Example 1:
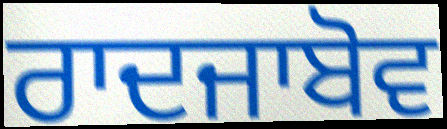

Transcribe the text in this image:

ਰਾਦਜਾਬੋਵ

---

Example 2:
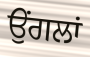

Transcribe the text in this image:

ਉਂਗਲਾਂ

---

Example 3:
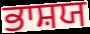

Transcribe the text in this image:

ਭਾਸ਼ਯ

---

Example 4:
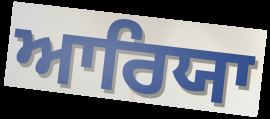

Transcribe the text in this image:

ਆਰਿਯਾ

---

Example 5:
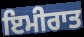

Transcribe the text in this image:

ਇਮੀਰਾਤ